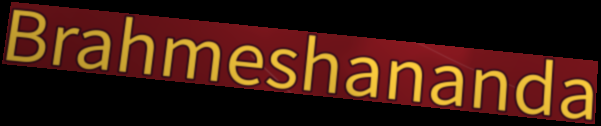
Brahmeshananda